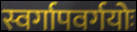
स्वर्गापवर्गयोः